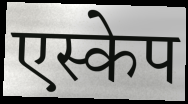
एस्केप